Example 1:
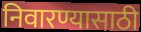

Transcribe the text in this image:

निवारण्यासाठी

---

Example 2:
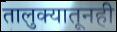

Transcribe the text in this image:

तालुक्यातूनही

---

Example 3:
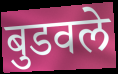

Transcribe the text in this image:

बुडवले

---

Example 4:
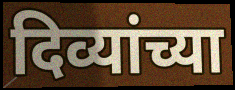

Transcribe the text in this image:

दिव्यांच्या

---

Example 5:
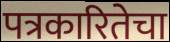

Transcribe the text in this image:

पत्रकारितेचा